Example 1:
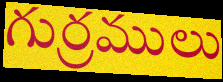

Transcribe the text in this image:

గుర్రములు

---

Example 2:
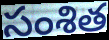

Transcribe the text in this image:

సంశిత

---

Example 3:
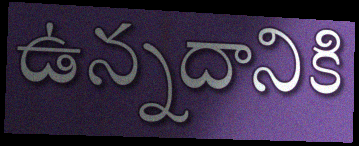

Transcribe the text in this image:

ఉన్నదానికి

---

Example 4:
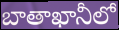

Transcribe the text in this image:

బాతాఖానీలో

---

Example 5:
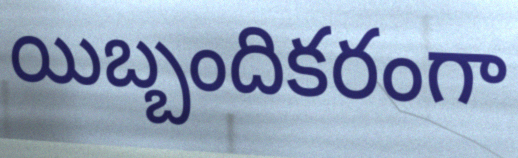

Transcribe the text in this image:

యిబ్బందికరంగా